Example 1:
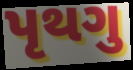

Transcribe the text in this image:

પૃથગુ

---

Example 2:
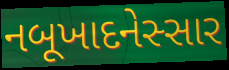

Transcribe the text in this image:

નબૂખાદનેસ્સાર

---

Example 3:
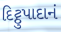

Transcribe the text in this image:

દિટ્ઠુપાદાનં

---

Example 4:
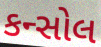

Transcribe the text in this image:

કન્સોલ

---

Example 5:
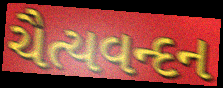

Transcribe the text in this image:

ચૈત્યવન્દન